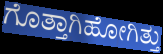
ಗೊತ್ತಾಗಿಹೋಗಿತ್ತು